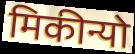
मिकीन्यो